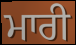
ਮਾਰੀ